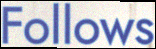
Follows